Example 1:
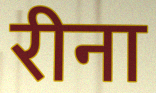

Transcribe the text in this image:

रीना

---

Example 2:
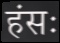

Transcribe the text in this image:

हंसः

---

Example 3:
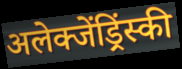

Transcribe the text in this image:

अलेक्जेंड्रिंस्की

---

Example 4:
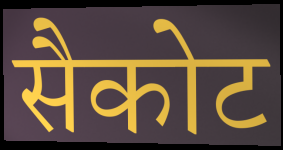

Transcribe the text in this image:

सैकोट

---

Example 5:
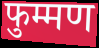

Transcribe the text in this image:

फुम्मण